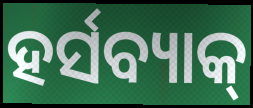
ହର୍ସବ୍ୟାକ୍